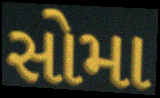
સોમા